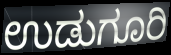
ಉಡುಗೂರಿ